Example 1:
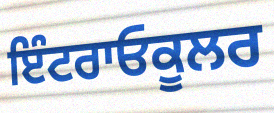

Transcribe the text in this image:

ਇੰਟਰਾਓਕੂਲਰ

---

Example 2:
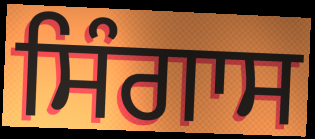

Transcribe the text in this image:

ਸਿੰਗਾਸ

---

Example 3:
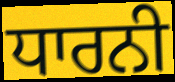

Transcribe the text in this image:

ਧਾਰਨੀ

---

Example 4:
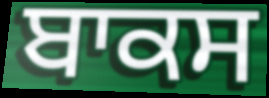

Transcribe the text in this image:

ਬਾਕਸ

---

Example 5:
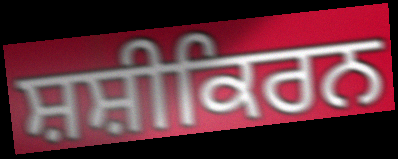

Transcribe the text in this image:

ਸ਼ਸ਼ੀਕਿਰਨ